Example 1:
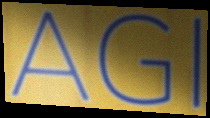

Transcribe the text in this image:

AGI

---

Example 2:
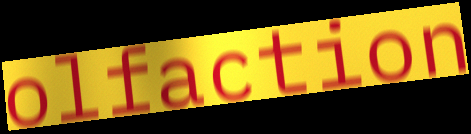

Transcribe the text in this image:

olfaction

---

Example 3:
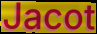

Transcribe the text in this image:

Jacot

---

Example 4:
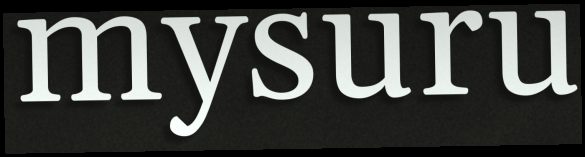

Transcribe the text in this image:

mysuru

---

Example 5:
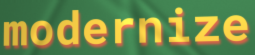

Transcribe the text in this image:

modernize